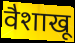
वैशाखू